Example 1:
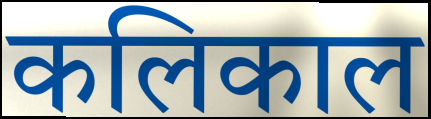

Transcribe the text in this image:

कलिकाल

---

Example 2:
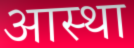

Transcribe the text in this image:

आस्था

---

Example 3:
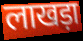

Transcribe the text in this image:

लाखड़ा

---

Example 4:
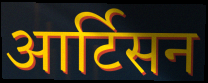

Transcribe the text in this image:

आर्टिसन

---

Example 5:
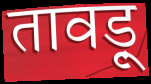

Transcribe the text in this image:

तावड़ू